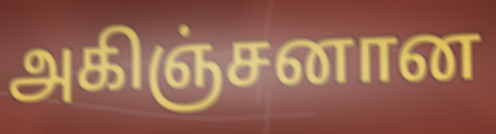
அகிஞ்சனான